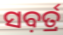
ସବ଼ର୍ତ୍ର